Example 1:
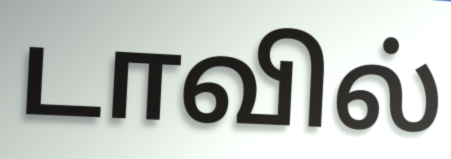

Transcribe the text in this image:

டாவில்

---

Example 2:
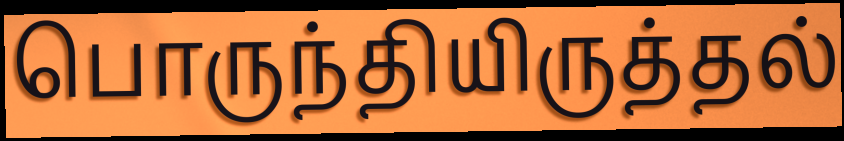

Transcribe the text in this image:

பொருந்தியிருத்தல்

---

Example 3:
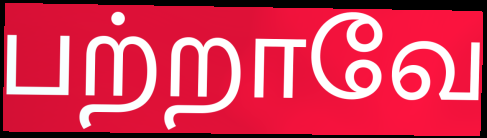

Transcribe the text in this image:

பற்றாவே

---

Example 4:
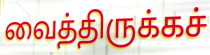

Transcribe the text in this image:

வைத்திருக்கச்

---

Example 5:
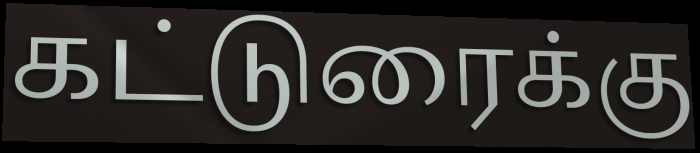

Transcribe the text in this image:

கட்டுரைக்கு